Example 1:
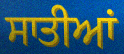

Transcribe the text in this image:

ਸਾਤੀਆਂ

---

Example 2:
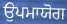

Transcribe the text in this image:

ਉਪਮਾਯੋਗ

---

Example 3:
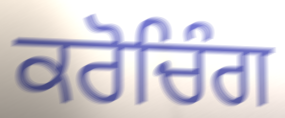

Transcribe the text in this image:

ਕਰੋਚਿੰਗ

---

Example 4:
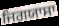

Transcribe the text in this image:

ਜਿਗਯਾਸਾ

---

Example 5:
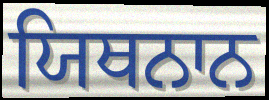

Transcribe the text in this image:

ਯਿਥਨਾਨ